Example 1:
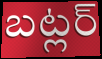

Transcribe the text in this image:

బట్లర్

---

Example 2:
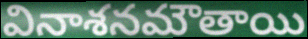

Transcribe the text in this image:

వినాశనమౌతాయి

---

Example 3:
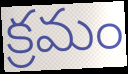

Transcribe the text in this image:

క్రమం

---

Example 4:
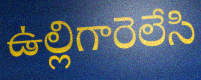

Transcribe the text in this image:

ఉల్లిగారెలేసి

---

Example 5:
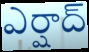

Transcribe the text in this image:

ఎర్షాద్